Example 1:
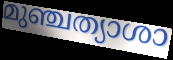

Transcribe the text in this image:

മുഞ്ചത്യാശാ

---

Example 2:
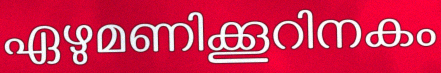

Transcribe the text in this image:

ഏഴുമണിക്കൂറിനകം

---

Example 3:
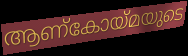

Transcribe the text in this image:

ആണ്കോയ്മയുടെ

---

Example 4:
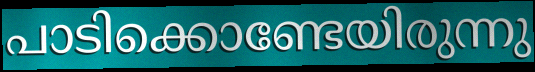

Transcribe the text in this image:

പാടിക്കൊണ്ടേയിരുന്നു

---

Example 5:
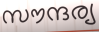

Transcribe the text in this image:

സൗന്ദര്യ